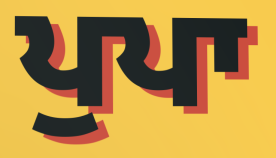
ਪੁਪਾ